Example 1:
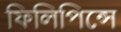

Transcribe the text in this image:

ফিলিপিন্সে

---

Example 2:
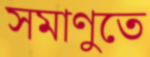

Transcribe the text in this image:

সমাণুতে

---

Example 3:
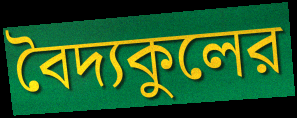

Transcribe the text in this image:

বৈদ্যকুলের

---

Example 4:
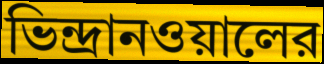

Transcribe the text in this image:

ভিন্দ্রানওয়ালের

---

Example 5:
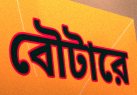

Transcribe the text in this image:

বৌটারে